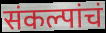
संकल्पांचं